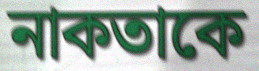
নাকতাকে